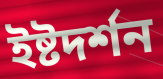
ইষ্টদর্শন